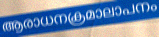
ആരാധനക്രമാലാപനം